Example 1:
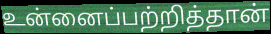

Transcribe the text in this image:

உன்னைப்பற்றித்தான்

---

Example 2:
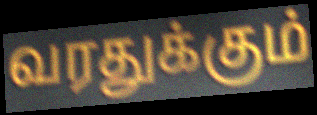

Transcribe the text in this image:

வரதுக்கும்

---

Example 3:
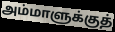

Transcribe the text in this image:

அம்மாளுக்குத்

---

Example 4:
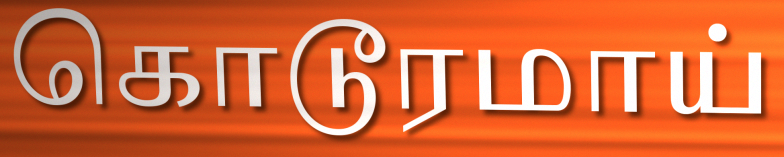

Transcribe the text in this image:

கொடூரமாய்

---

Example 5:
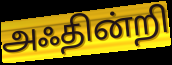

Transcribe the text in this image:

அஃதின்றி